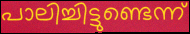
പാലിച്ചിട്ടുണ്ടെന്ന്